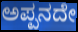
ಅಪ್ಪನದೇ